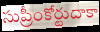
సుప్రీంకోర్టుదాకా